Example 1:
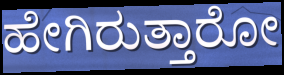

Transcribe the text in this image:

ಹೇಗಿರುತ್ತಾರೋ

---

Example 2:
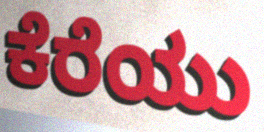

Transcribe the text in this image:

ಕೆರೆಯು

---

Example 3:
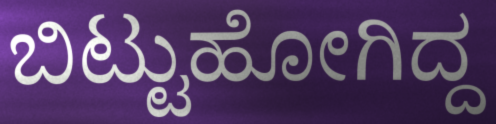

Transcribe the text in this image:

ಬಿಟ್ಟುಹೋಗಿದ್ದ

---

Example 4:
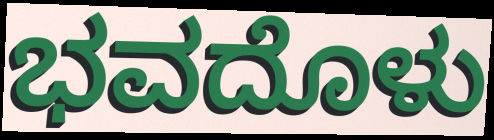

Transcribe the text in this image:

ಭವದೊಳು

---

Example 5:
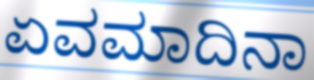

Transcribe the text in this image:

ಏವಮಾದಿನಾ